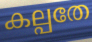
കല്പതേ